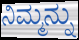
ನಿಮ್ಮನ್ನು